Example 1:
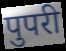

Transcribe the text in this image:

पुपरी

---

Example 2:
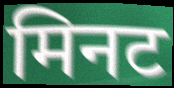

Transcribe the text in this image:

मिनट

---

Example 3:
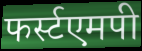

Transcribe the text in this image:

फर्स्टएमपी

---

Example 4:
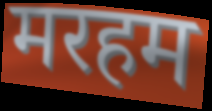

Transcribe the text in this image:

मरहम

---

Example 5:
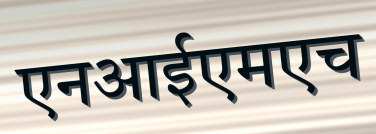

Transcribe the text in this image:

एनआईएमएच